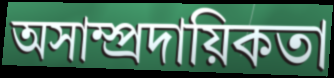
অসাম্প্রদায়িকতা